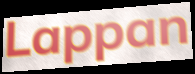
Lappan